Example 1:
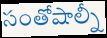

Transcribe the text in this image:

సంతోషాల్నీ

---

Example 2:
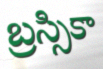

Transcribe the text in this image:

బ్రస్సికా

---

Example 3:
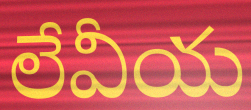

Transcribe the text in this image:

లేవీయ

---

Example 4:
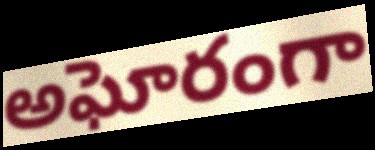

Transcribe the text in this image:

అఘోరంగా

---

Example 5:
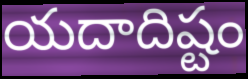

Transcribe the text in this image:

యదాదిష్టం